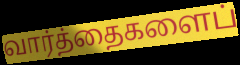
வார்த்தைகளைப்